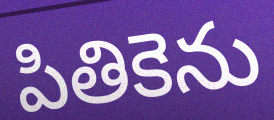
పితికెను